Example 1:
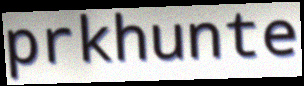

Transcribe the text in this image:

prkhunte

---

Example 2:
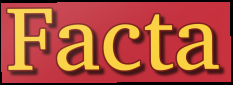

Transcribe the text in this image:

Facta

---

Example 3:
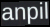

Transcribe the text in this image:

anpil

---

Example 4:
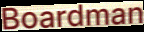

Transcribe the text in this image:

Boardman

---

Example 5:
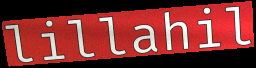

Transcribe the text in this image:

lillahil